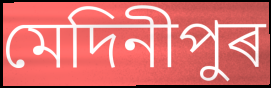
মেদিনীপুৰ